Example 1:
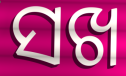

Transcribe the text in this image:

ସଖ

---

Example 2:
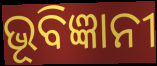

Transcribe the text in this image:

ଭୂବିଜ୍ଞାନୀ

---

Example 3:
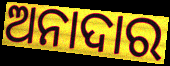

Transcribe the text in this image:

ଅନାଦାର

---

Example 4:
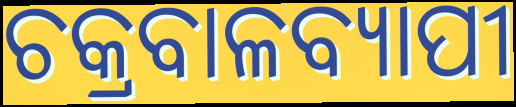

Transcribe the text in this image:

ଚକ୍ରବାଳବ୍ୟାପୀ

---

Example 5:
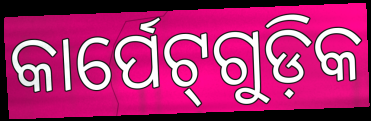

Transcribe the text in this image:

କାର୍ପେଟ୍‌ଗୁଡ଼ିକ